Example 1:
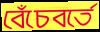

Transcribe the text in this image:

বেঁচেবর্তে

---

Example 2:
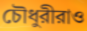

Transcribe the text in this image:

চৌধুরীরাও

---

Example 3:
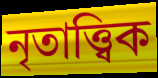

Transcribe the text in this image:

নৃতাত্ত্বিক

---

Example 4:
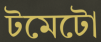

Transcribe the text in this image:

টমেটো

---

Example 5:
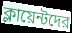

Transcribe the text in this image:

ক্লায়েন্টদের